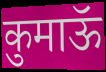
कुमाऊॅ